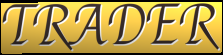
TRADER